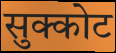
सुक्कोट